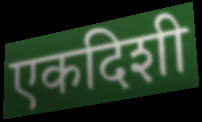
एकदिशी